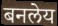
बनलेय